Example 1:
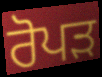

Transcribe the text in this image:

ਰੋਪੜ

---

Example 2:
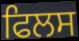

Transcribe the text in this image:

ਫਿਲਸ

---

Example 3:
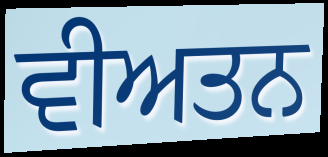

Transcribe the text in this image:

ਵੀਅਤਨ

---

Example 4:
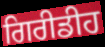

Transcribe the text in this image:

ਗਿਰੀਡੀਹ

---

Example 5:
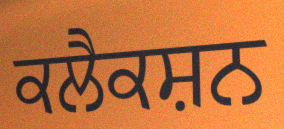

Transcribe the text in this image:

ਕਲੈਕਸ਼ਨ